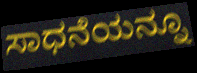
ಸಾಧನೆಯನ್ನೂ